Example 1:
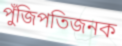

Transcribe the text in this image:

পুঁজিপতিজনক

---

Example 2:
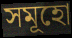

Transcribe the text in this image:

সমূহো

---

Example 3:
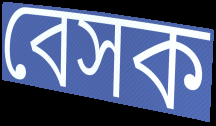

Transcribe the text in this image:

বেসক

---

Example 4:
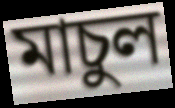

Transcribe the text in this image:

মাচুল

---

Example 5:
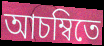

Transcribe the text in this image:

আচম্বিতে